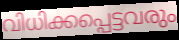
വിധിക്കപ്പെട്ടവരും